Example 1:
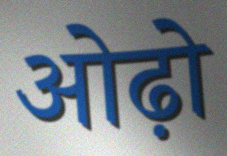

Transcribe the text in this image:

ओढ़ो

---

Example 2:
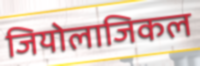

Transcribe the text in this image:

जियोलाजिकल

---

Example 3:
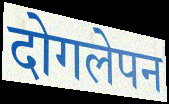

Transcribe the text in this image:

दोगलेपन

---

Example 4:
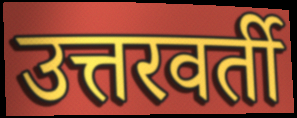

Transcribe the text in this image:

उत्तरवर्ती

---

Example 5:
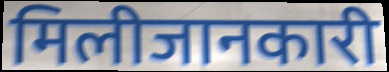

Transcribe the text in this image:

मिलीजानकारी